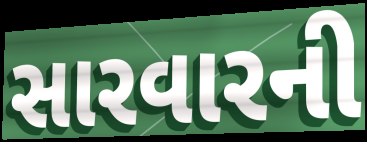
સારવારની